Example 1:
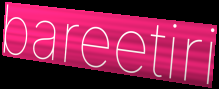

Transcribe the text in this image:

bareetiri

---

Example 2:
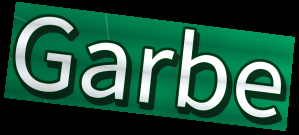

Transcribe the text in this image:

Garbe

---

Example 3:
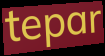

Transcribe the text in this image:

tepar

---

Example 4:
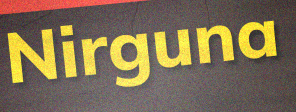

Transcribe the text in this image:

Nirguna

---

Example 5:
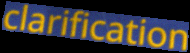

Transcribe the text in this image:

clarification